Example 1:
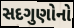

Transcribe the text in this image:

સદગુણોનો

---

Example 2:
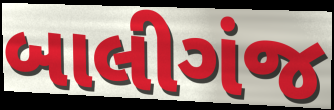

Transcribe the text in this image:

બાલીગંજ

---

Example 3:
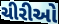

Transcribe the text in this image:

ચીરીઓ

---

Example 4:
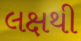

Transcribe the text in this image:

લક્ષથી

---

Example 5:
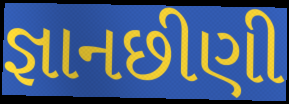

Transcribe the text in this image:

જ્ઞાનછીણી